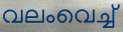
വലംവെച്ച്